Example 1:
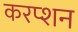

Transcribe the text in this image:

करप्‍शन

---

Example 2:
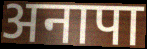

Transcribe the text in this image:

अनापा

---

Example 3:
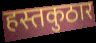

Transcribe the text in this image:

हस्तकुठार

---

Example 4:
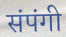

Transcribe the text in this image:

संपंगी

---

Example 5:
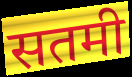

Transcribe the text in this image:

सतमी